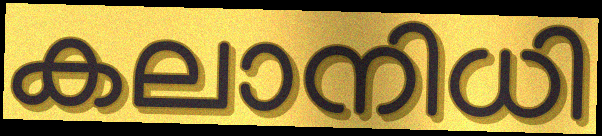
കലാനിധി